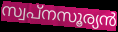
സ്വപ്നസൂര്യൻ